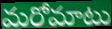
మరోమాటు